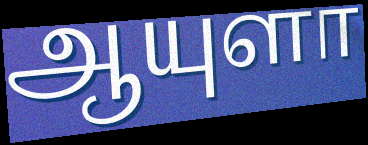
ஆயுளா